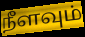
நீளவும்